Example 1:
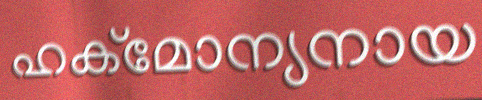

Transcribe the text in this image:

ഹക്മോന്യനായ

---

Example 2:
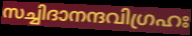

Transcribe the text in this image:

സച്ചിദാനന്ദവിഗ്രഹഃ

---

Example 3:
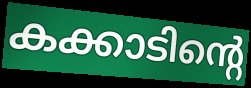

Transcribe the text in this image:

കക്കാടിന്റെ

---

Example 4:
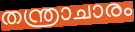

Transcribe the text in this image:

തന്ത്രാചാരം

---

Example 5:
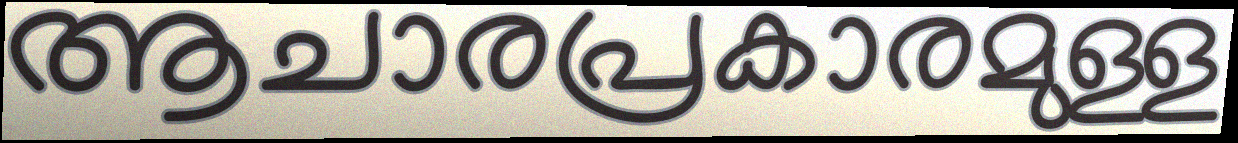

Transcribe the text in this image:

ആചാരപ്രകാരമുള്ള